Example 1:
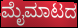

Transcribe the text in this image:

ಮೈಮಾಟದ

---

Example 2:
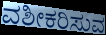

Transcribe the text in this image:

ವಶೀಕರಿಸುವ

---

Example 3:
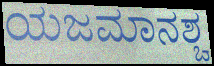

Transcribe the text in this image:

ಯಜಮಾನಶ್ಚ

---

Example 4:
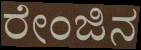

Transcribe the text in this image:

ರೇಂಜಿನ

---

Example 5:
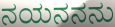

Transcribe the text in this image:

ನಯನನನು